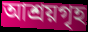
আশ্ৰয়গৃহ